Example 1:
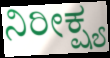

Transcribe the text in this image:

ನಿರೀಕ್ಷ್ಯ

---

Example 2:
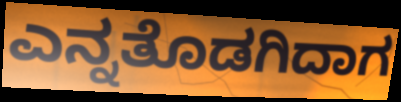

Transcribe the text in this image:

ಎನ್ನತೊಡಗಿದಾಗ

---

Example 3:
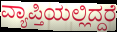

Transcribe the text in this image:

ವ್ಯಾಪ್ತಿಯಲ್ಲಿದ್ದರೆ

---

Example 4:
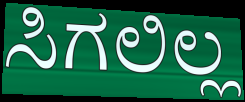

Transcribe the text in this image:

ಸಿಗಲಿಲ್ಲ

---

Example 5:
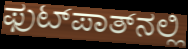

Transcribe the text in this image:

ಫುಟ್‌ಪಾತ್‌ನಲ್ಲಿ